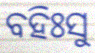
ବହିଃସୁ